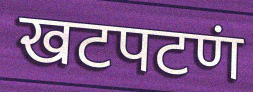
खटपटणं